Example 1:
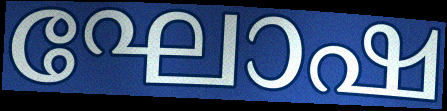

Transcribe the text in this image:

ഘോഷ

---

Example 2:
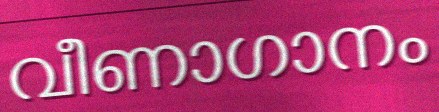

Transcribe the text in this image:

വീണാഗാനം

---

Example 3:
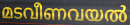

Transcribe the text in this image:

മടവീണവയൽ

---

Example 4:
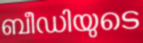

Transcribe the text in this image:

ബീഡിയുടെ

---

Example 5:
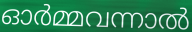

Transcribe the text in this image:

ഓർമ്മവന്നാൽ